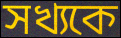
সখ্যকে